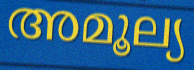
അമൂല്യ